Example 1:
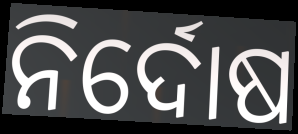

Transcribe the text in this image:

ନିର୍ଦୋଷ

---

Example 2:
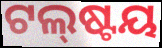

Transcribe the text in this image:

ଟଲ୍‌ଷ୍ଟୟ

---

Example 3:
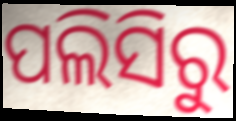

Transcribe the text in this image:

ପଲିସିରୁ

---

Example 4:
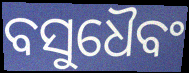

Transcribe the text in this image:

ବସୁଧୈବଂ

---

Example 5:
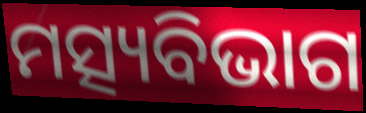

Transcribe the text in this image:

ମତ୍ସ୍ୟବିଭାଗ